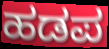
ಹಡಪ